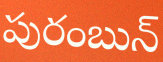
పురంబున్